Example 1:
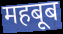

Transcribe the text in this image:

महबूब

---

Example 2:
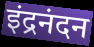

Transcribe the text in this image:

इंद्रनंदन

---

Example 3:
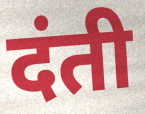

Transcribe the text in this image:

दंती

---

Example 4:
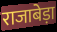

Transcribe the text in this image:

राजाबेड़ा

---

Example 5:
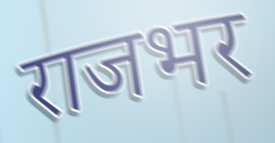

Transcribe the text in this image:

राजभर